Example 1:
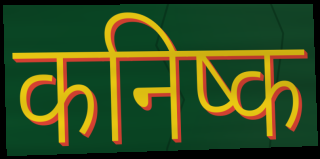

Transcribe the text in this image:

कनिष्क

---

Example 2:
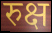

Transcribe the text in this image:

रुक्ष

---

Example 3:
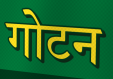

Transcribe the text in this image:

गोटन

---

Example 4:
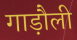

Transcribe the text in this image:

गाड़ौली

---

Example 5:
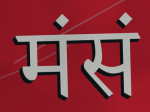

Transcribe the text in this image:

मंसं